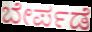
ಬೇರ್ಪಡೆ